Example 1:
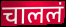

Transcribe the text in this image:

चाललं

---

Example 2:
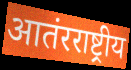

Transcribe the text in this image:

आतंरराष्ट्रीय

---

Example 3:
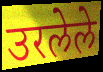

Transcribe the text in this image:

उरलेले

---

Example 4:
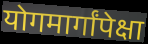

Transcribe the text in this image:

योगमार्गांपेक्षा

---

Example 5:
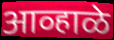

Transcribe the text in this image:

आव्हाळे